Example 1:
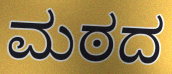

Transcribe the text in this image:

ಮಠದ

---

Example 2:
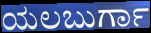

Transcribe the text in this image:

ಯಲಬುರ್ಗಾ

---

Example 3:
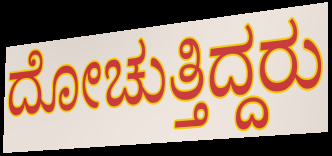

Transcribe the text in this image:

ದೋಚುತ್ತಿದ್ದರು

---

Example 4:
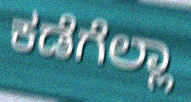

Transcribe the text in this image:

ಕಡೆಗೆಲ್ಲಾ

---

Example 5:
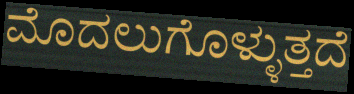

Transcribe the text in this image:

ಮೊದಲುಗೊಳ್ಳುತ್ತದೆ